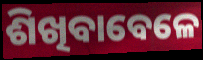
ଶିଖିବାବେଳେ